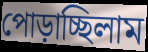
পোড়াচ্ছিলাম